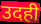
उदही